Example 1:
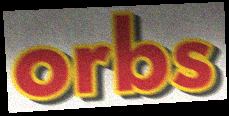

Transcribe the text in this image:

orbs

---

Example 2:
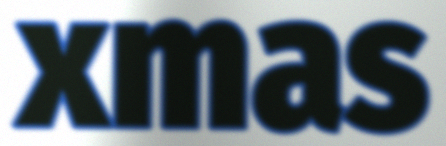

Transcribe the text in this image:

xmas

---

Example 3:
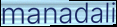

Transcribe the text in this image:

manadali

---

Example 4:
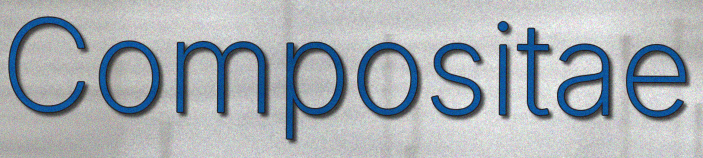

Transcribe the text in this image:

Compositae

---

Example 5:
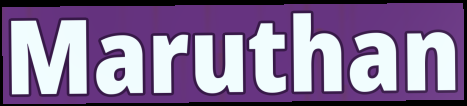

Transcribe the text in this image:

Maruthan